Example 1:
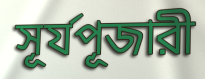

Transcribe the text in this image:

সূর্যপূজারী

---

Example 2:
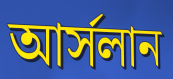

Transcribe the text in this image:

আর্সলান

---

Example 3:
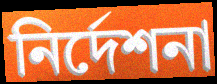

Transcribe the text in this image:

নির্দেশনা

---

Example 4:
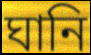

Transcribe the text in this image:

ঘানি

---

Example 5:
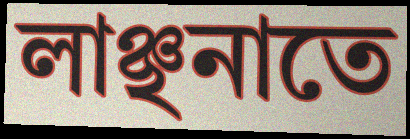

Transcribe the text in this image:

লাঞ্ছনাতে